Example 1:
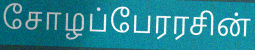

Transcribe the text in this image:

சோழப்பேரரசின்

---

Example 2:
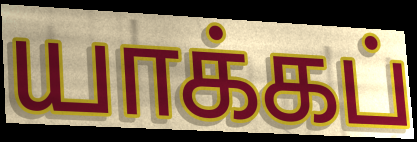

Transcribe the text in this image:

யாக்கப்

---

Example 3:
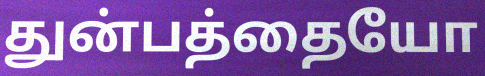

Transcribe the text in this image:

துன்பத்தையோ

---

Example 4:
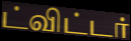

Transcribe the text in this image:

ட்விட்டர்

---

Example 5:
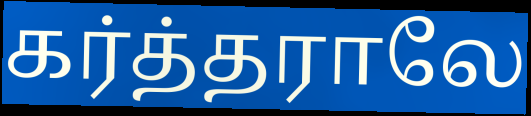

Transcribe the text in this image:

கர்த்தராலே